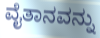
ವೈತಾನವನ್ನು